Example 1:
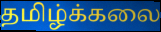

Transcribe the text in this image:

தமிழ்க்கலை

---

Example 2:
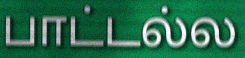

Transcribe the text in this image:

பாட்டல்ல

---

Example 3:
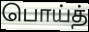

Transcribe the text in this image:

பொய்த்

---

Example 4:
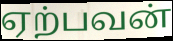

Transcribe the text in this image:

ஏற்பவன்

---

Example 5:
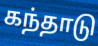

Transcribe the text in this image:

கந்தாடு